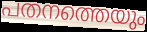
പതനത്തെയും